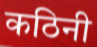
कठिनी